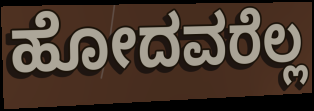
ಹೋದವರೆಲ್ಲ